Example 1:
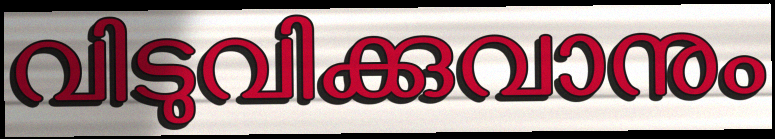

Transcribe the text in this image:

വിടുവിക്കുവാനും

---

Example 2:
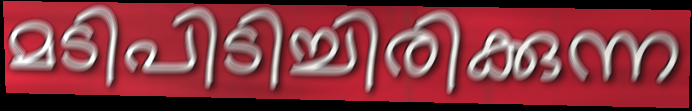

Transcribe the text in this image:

മടിപിടിച്ചിരിക്കുന്ന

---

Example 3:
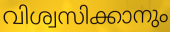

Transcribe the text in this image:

വിശ്വസിക്കാനും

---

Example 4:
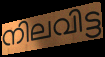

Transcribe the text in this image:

നിലവിട്ട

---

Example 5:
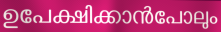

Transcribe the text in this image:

ഉപേക്ഷിക്കാൻപോലും